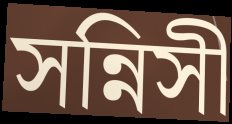
সন্নিসী